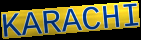
KARACHI